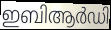
ഇബിആർഡി